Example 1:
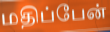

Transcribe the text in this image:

மதிப்பேன்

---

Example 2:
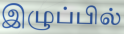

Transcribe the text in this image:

இழுப்பில்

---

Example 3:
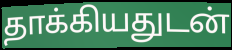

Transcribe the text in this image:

தாக்கியதுடன்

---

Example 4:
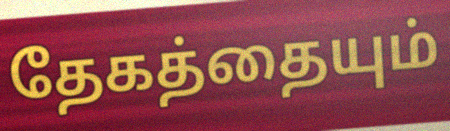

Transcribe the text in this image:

தேகத்தையும்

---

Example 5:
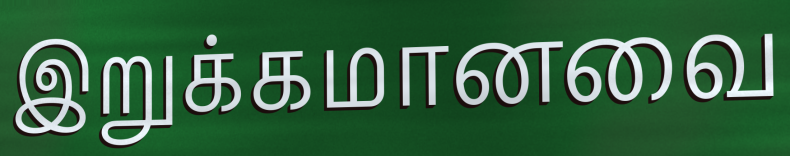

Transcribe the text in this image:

இறுக்கமானவை